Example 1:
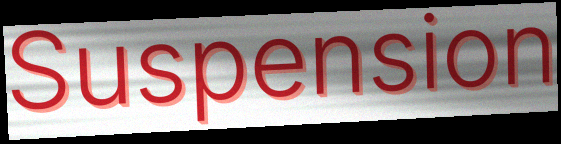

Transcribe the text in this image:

Suspension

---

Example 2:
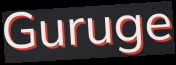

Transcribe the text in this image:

Guruge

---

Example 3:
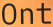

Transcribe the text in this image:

Ont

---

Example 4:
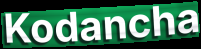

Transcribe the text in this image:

Kodancha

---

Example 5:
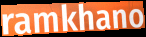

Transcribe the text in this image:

ramkhano